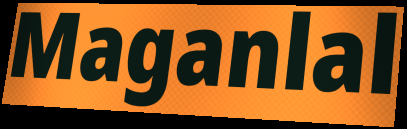
Maganlal